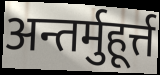
अन्तर्मुहूर्त्त